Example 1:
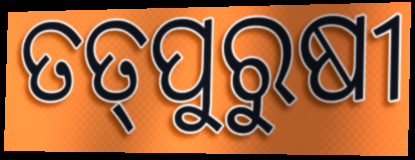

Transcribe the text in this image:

ତତ୍‌ପୁରୁଷୀ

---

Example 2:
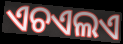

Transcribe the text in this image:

ଏଚଏଲଏ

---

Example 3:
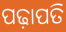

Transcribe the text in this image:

ପଢ଼ାପତି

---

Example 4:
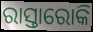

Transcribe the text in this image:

ରାସ୍ତାରୋକି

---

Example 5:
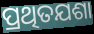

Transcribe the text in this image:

ପ୍ରଥିତଯଶା